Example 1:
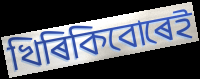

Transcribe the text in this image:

খিৰিকিবোৰেই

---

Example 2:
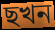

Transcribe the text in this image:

ছখন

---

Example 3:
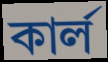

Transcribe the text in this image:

কাৰ্ল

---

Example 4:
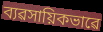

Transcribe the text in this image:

ব্যৱসায়িকভাৱে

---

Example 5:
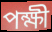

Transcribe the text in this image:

পক্ষী